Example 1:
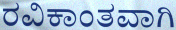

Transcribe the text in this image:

ರವಿಕಾಂತವಾಗಿ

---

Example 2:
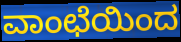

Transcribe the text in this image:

ವಾಂಛೆಯಿಂದ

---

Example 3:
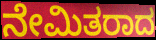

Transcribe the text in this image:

ನೇಮಿತರಾದ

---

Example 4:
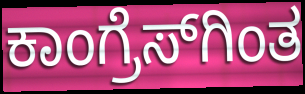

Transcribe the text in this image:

ಕಾಂಗ್ರೆಸ್‌ಗಿಂತ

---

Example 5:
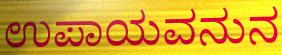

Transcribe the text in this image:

ಉಪಾಯವನುನ